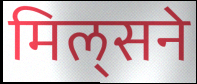
मिल्सने